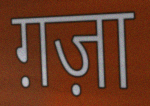
ग़ज़ा